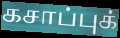
கசாப்புக்